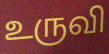
உருவி